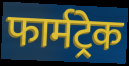
फार्मट्रेक